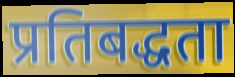
प्रतिबद्धता